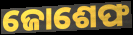
ଜୋଶେଫ